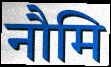
नौमि